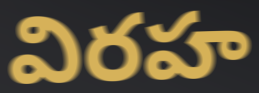
విరహ